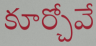
కూర్చోవే